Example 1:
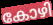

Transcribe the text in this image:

കോഴി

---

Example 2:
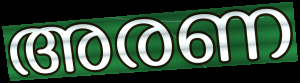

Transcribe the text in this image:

അരണ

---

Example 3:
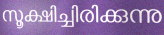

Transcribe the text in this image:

സൂക്ഷിച്ചിരിക്കുന്നു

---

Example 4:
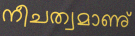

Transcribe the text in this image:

നീചത്വമാണു്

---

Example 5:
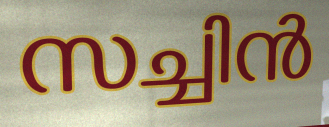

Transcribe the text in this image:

സച്ചിൻ